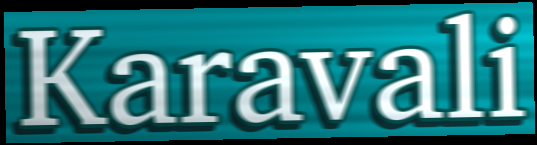
Karavali